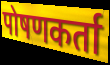
पोषणकर्ता